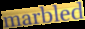
marbled